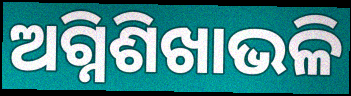
ଅଗ୍ନିଶିଖାଭଳି